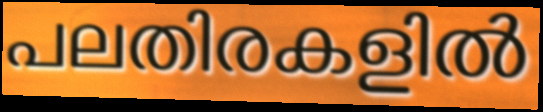
പലതിരകളിൽ